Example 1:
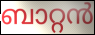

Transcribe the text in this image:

ബാറ്റൻ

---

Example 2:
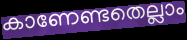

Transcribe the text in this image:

കാണേണ്ടതെല്ലാം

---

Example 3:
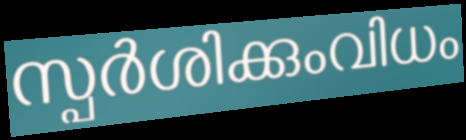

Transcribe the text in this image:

സ്പർശിക്കുംവിധം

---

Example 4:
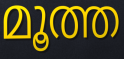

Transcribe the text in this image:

മൂത്ത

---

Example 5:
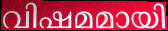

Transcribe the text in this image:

വിഷമമായി